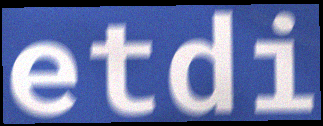
etdi